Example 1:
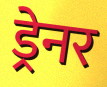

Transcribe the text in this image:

ड्रेनर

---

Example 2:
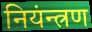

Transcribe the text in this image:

नियंन्त्रण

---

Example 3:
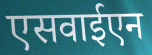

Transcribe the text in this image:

एसवाईएन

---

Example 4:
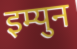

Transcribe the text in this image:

इम्युन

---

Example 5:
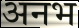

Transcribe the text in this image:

अनभ